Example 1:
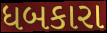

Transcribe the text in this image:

ધબકારા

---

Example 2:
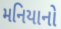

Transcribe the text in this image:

મનિયાનો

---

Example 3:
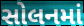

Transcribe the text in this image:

સોલનમાં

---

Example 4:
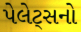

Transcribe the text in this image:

પેલેટ્સનો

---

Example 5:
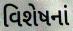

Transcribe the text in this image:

વિશેષનાં